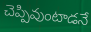
చెప్పివుంటాడనే